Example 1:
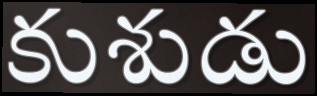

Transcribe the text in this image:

కుశుడు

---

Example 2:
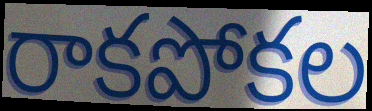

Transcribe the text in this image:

రాకపోకల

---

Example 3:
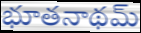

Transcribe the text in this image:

భూతనాథమ్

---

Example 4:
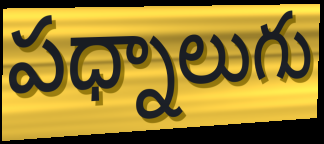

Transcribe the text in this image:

పధ్నాలుగు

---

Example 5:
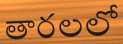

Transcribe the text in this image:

తారలలో